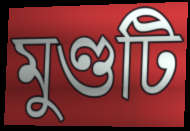
মুণ্ডটি